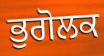
ਭੁਗੋਲਕ